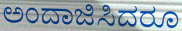
ಅಂದಾಜಿಸಿದರೂ